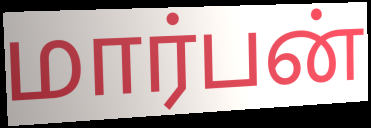
மார்பன்